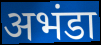
अभंडा